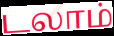
டலாம்